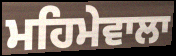
ਮਹਿਮੇਵਾਲਾ